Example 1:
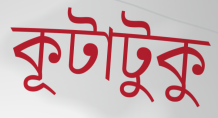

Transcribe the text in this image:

কূটাটুকু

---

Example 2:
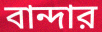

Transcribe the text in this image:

বান্দার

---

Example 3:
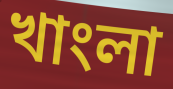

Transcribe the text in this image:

খাংলা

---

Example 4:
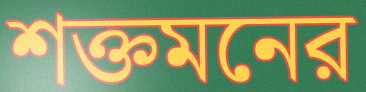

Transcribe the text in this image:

শক্তমনের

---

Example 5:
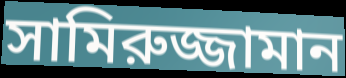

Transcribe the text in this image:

সামিরুজ্জামান